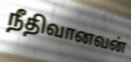
நீதிவானவன்